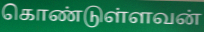
கொண்டுள்ளவன்